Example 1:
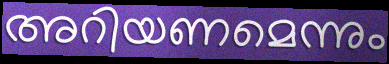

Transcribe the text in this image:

അറിയണമെന്നും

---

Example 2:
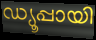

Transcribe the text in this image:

ഡ്യൂപ്പായി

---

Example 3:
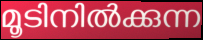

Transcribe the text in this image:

മൂടിനിൽക്കുന്ന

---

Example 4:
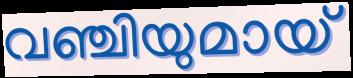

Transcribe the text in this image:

വഞ്ചിയുമായ്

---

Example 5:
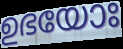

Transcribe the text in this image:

ഉഭയോഃ